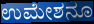
ಉಮೇಶನೂ